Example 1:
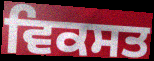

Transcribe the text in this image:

ਵਿਕਸਤ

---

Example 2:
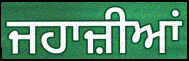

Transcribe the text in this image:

ਜਹਾਜ਼ੀਆਂ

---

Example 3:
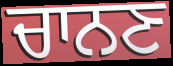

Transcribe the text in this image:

ਚਾਨਣ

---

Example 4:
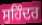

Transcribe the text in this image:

ਸੁਹਿੰਦਰ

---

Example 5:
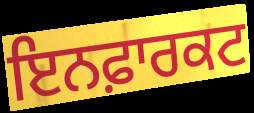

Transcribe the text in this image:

ਇਨਫ਼ਾਰਕਟ